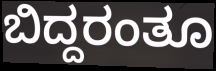
ಬಿದ್ದರಂತೂ